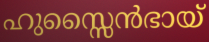
ഹുസ്സൈൻഭായ്